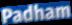
Padham